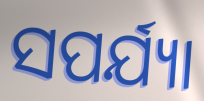
ସପର୍ଯ୍ୟା